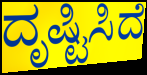
ದೃಷ್ಟಿಸಿದೆ